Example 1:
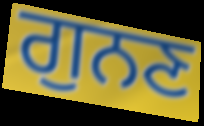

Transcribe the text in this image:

ਗੁਨਣ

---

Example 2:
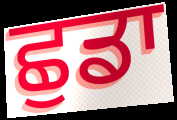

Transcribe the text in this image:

ਛੁਡਾ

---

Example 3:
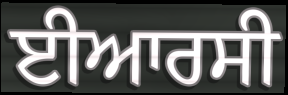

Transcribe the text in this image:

ਈਆਰਸੀ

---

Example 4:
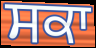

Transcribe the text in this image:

ਸਕਾ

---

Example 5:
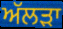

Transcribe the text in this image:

ਅੱਲੜਾ